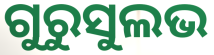
ଗୁରୁସୁଲଭ